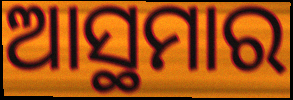
ଆସ୍ଥମାର